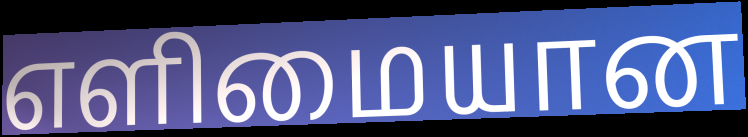
எளிமையான